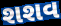
શશવ